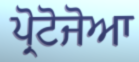
ਪ੍ਰੋਟੋਜੋਆ